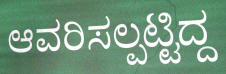
ಆವರಿಸಲ್ಪಟ್ಟಿದ್ದ